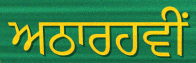
ਅਠਾਰਹਵੀਂ